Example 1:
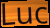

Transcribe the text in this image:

Luc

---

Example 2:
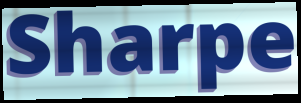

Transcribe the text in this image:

Sharpe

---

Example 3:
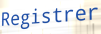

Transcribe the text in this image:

Registrer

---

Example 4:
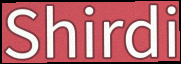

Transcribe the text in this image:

Shirdi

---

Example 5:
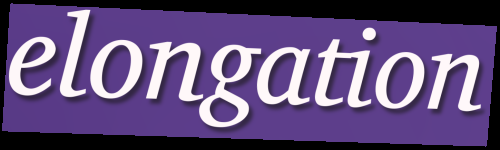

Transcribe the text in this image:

elongation